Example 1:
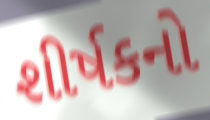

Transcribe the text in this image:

શીર્ષકનો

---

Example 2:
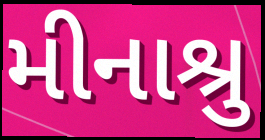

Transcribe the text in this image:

મીનાશ્રુ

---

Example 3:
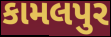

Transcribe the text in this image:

કામલપુર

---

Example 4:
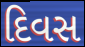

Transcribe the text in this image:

દિવસ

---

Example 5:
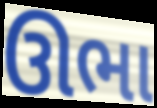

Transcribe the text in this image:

ઊભા